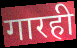
गारही